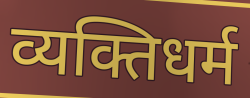
व्यक्तिधर्म